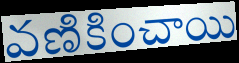
వణికించాయి